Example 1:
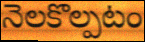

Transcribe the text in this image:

నెలకొల్పటం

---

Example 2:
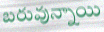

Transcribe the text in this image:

బరువున్నాయి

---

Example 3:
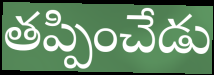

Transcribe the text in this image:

తప్పించేడు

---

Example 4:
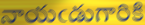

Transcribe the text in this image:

నాయఁడుగారికి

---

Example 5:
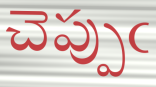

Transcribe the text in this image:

చెప్పుఁ